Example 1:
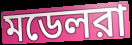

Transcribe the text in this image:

মডেলরা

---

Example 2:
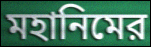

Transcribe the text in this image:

মহানিমের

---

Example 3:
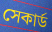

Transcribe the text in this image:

সেকার্ড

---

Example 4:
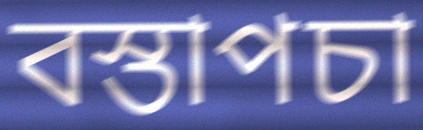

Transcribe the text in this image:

বস্তাপচা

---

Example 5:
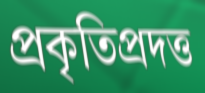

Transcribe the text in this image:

প্রকৃতিপ্রদত্ত